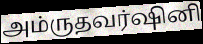
அம்ருதவர்ஷினி